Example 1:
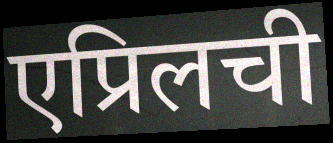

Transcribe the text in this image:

एप्रिलची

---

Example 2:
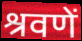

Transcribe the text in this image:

श्रवणें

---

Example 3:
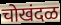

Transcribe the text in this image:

चोखंदळ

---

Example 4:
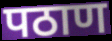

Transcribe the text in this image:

पठाण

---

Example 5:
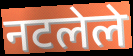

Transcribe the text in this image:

नटलेले